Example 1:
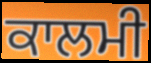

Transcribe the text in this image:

ਕਾਲਮੀ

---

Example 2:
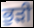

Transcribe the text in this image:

ਭੁੜੀ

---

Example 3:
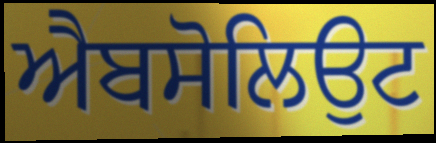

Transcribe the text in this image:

ਐਬਸੋਲਿਉਟ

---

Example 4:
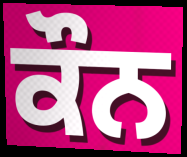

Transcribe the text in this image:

ਕੌਨ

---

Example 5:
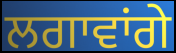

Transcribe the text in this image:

ਲਗਾਵਾਂਗੇ